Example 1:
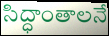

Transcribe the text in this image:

సిద్ధాంతాలనే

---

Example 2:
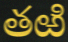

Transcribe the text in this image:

తఱి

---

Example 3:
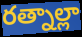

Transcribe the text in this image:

రత్నాల్లా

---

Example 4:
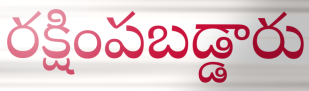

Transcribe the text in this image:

రక్షింపబడ్డారు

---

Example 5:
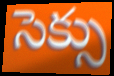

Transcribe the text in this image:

సెక్సు